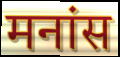
मनांस